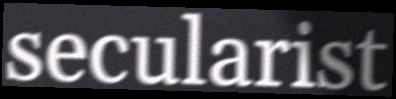
secularist